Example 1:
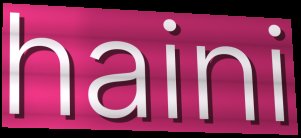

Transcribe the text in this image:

haini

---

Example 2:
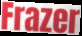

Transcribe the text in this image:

Frazer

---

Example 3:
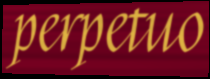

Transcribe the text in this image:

perpetuo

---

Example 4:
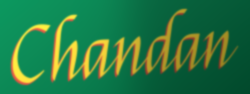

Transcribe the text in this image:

Chandan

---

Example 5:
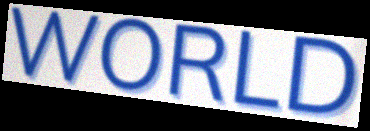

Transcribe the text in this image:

WORLD